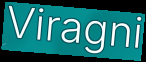
Viragni